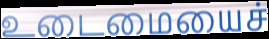
உடைமையைச்